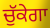
ਚੁੱਕੇਗਾ